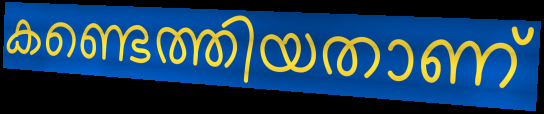
കണ്ടെത്തിയതാണ്